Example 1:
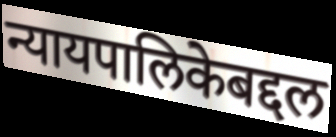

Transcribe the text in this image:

न्यायपालिकेबद्दल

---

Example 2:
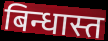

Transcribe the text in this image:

बिन्धास्त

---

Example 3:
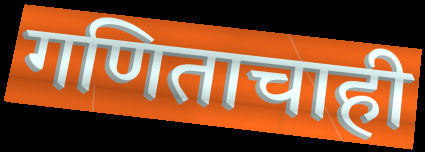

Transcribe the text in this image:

गणिताचाही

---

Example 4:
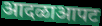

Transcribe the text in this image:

आदळाआपट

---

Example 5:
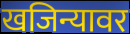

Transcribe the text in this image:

खजिन्यावर